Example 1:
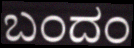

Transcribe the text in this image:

ಬಂದಂ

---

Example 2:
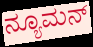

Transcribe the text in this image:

ನ್ಯೂಮನ್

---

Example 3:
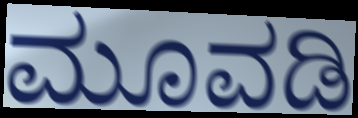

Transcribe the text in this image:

ಮೂವಡಿ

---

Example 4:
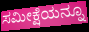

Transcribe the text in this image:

ಸಮೀಕ್ಷೆಯನ್ನೂ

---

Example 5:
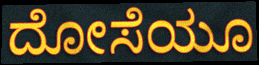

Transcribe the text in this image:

ದೋಸೆಯೂ